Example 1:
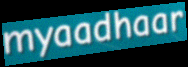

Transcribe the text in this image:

myaadhaar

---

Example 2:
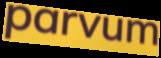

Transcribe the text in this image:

parvum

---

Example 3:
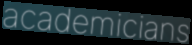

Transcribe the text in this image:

academicians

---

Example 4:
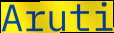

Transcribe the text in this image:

Aruti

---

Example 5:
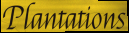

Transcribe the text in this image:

Plantations